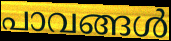
പാവങ്ങൾ